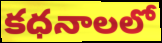
కధనాలలో